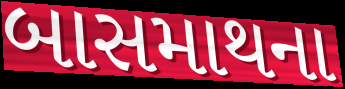
બાસમાથના